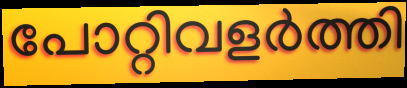
പോറ്റിവളർത്തി